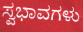
ಸ್ವಭಾವಗಳು